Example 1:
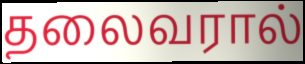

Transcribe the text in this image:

தலைவரால்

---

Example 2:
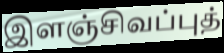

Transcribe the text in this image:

இளஞ்சிவப்புத்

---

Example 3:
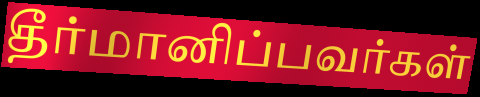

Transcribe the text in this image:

தீர்மானிப்பவர்கள்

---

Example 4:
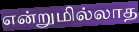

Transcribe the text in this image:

என்றுமில்லாத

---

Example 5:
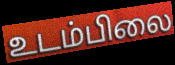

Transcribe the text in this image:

உடம்பிலை